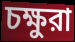
চক্ষুরা